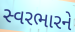
સ્વરભારને